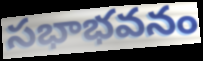
సభాభవనం